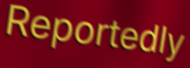
Reportedly